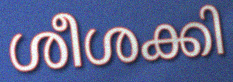
ശീശക്കി